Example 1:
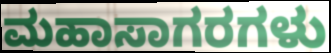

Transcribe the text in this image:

ಮಹಾಸಾಗರಗಳು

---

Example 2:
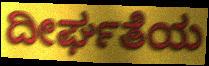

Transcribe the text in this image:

ದೀರ್ಘತೆಯ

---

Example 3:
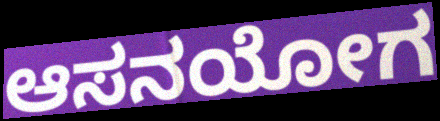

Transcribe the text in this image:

ಆಸನಯೋಗ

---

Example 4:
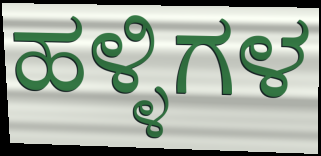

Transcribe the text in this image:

ಹಳ್ಳಿಗಳ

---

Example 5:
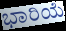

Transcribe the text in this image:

ಭಾರಿಯೆ